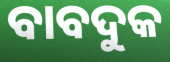
ବାବଦୁକ